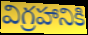
విగ్రహానికి